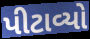
પીટાવ્યો